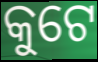
କୁଟେ